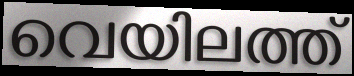
വെയിലത്ത്